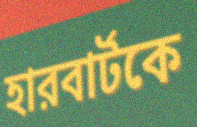
হারবার্টকে